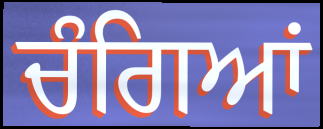
ਚੰਗਿਆਂ